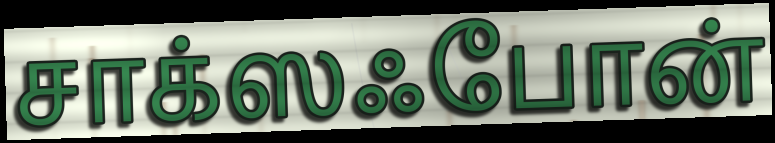
சாக்ஸஃபோன்